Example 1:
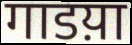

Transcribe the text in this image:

गाडय़ा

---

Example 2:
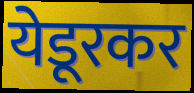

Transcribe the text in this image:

येडूरकर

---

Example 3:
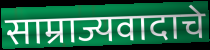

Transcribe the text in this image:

साम्राज्यवादाचे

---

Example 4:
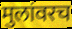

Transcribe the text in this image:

मुलांवरच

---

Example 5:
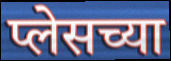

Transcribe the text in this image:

प्लेसच्या